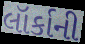
લૉર્કાની